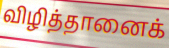
விழித்தானைக்